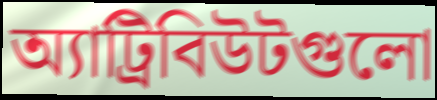
অ্যাট্রিবিউটগুলো